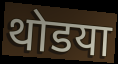
थोडया